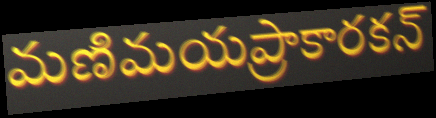
మణిమయప్రాకారకన్